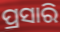
ପ୍ରସାରି